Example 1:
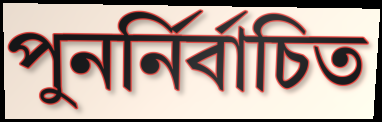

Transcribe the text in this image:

পুনর্নির্বাচিত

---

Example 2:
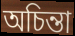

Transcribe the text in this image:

অচিন্তা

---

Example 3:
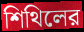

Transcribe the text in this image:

শিথিলের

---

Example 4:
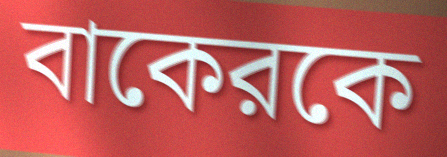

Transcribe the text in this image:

বাকেরকে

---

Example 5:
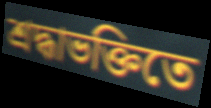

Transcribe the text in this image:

শ্রদ্ধাভক্তিতে